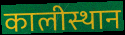
कालीस्थान